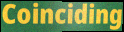
Coinciding